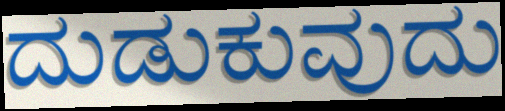
ದುಡುಕುವುದು